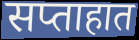
सप्ताहात